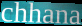
chhana